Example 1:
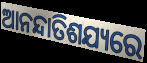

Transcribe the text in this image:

ଆନନ୍ଦାତିଶଯ୍ୟରେ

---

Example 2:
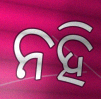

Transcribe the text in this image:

ନହି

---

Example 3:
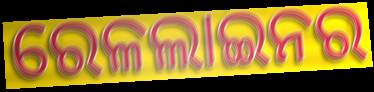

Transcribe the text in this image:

ରେଳଲାଇନର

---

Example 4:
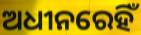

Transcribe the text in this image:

ଅଧୀନରେହିଁ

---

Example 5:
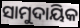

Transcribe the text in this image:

ସାମୁଦାୟିକ